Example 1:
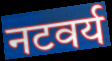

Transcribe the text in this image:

नटवर्य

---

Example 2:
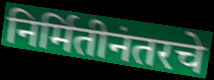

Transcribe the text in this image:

निर्मितीनंतरचे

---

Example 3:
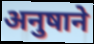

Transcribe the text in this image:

अनुषाने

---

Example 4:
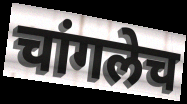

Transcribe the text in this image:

चांगलेच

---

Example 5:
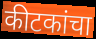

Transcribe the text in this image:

कीटकांचा